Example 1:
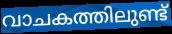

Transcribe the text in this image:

വാചകത്തിലുണ്ട്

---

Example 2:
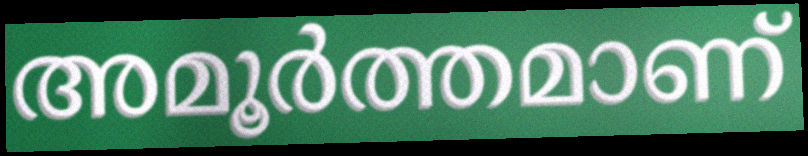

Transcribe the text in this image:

അമൂർത്തമാണ്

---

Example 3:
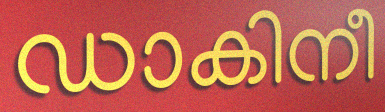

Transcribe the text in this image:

ഡാകിനീ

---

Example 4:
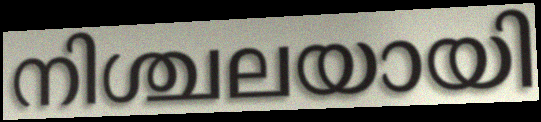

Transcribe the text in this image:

നിശ്ചലയായി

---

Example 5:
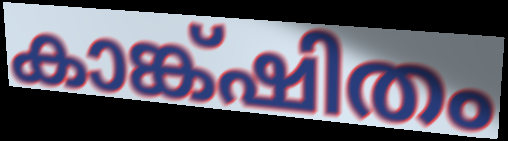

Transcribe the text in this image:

കാങ്ക്ഷിതം